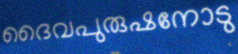
ദൈവപുരുഷനോടു